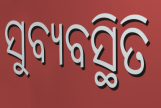
ସୁବ୍ୟବସ୍ଥିତି